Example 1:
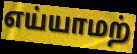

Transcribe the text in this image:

எய்யாமற்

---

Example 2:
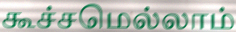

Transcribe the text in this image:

கூச்சமெல்லாம்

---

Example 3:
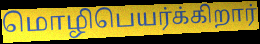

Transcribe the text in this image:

மொழிபெயர்க்கிறார்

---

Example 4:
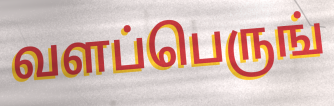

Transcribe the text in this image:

வளப்பெருங்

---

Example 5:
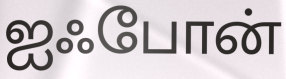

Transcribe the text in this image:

ஐஃபோன்